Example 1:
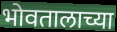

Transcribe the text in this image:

भोवतालाच्या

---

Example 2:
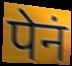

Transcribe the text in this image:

पेनं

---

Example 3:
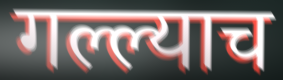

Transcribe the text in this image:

गल्ल्याच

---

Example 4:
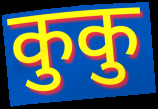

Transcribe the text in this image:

कुकु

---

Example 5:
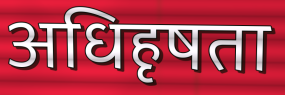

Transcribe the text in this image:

अधिहृषता